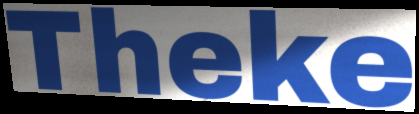
Theke